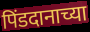
पिंडदानाच्या